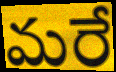
మరే